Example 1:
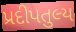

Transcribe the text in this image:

પ્રદીપતુલ્ય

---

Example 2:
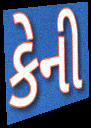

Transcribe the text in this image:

કેની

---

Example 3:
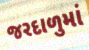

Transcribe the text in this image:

જરદાળુમાં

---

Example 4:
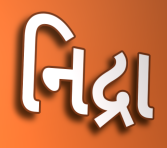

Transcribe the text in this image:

નિદ્રા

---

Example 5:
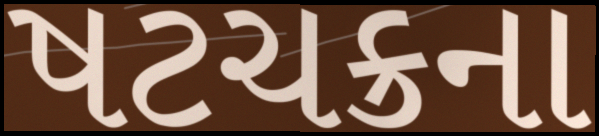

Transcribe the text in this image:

ષટચક્રના